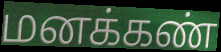
மனக்கண்